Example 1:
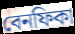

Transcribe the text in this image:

বেনফিকা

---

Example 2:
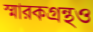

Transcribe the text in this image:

স্মারকগ্রন্থও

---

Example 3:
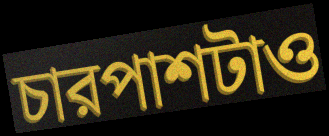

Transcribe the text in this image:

চারপাশটাও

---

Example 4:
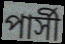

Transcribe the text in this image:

পার্সী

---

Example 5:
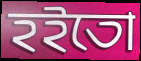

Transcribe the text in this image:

হইতো